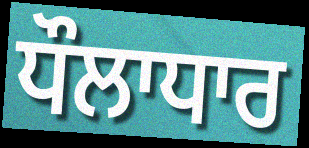
ਧੌਲਾਧਾਰ